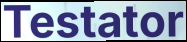
Testator